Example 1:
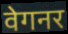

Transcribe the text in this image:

वेगनर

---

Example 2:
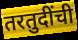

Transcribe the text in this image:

तरतुदींची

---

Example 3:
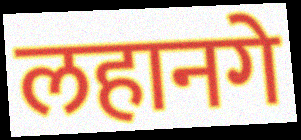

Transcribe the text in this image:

लहानगे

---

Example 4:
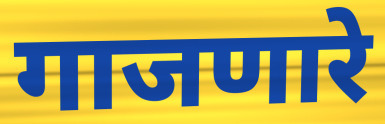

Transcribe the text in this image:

गाजणारे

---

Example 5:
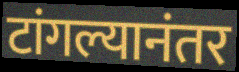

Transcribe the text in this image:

टांगल्यानंतर